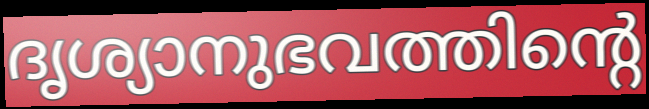
ദൃശ്യാനുഭവത്തിന്റെ